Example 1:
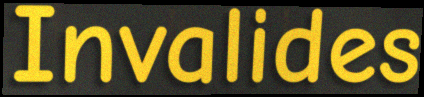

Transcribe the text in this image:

Invalides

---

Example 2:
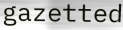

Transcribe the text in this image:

gazetted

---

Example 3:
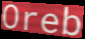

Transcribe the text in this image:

Oreb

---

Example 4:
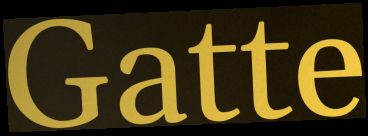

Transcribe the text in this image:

Gatte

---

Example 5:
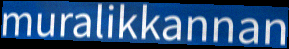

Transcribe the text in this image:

muralikkannan